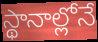
స్థానాల్లోనే